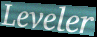
Leveler